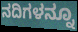
ನದಿಗಳನ್ನೂ